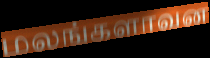
மலங்களாவன